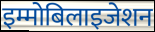
इम्मोबिलाइजेशन